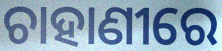
ଚାହାଣୀରେ